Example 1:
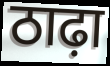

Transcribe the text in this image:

ठाढ़ा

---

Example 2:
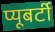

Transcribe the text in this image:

प्‍यूबर्टी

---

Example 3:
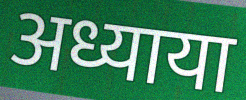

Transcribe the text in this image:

अध्याया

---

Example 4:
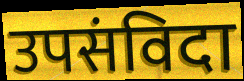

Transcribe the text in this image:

उपसंविदा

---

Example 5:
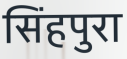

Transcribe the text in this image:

सिंहपुरा